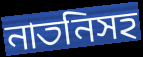
নাতনিসহ